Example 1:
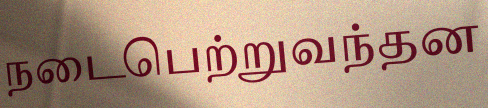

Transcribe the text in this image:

நடைபெற்றுவந்தன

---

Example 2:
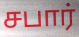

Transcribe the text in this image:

சபார்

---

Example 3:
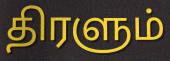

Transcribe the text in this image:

திரளும்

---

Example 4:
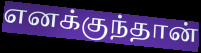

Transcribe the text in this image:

எனக்குந்தான்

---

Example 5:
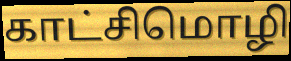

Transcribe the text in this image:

காட்சிமொழி